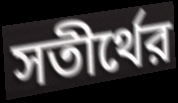
সতীর্থের